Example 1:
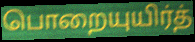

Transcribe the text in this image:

பொறையுயிர்த்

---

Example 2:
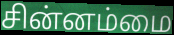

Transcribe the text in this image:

சின்னம்மை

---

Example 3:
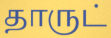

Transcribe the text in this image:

தாருட்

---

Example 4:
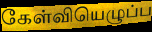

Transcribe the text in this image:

கேள்வியெழுப்ப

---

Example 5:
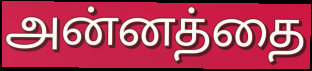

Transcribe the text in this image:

அன்னத்தை